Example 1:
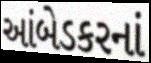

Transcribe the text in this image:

આંબેડકરનાં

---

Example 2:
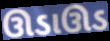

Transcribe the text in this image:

ઊડાઊડ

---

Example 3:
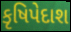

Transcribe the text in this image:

કૃષિપેદાશ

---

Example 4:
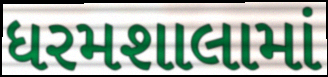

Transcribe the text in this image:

ધરમશાલામાં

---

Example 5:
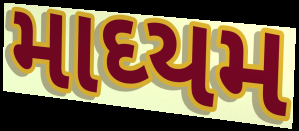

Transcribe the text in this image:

માઘ્યમ